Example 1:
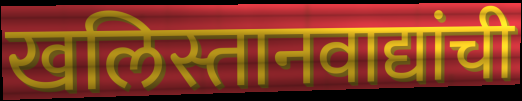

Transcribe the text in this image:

खलिस्तानवाद्यांची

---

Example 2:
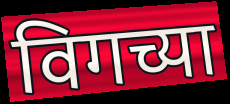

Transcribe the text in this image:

विगच्या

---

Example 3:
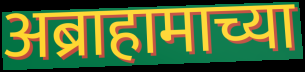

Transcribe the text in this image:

अब्राहामाच्या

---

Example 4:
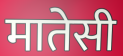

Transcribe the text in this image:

मातेसी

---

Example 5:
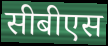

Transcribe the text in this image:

सीबीएस